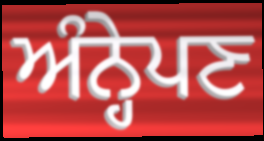
ਅੰਨ੍ਹੇਪਣ